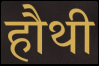
हौथी